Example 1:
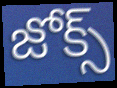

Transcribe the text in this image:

జోక్స్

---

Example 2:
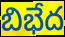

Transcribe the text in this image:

బిభేద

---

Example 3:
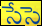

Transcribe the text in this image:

సేసె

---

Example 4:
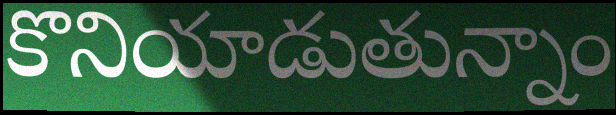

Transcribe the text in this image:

కొనియాడుతున్నాం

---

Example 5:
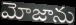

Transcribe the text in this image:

మోజాను